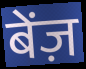
बेंज़